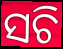
ସଚି